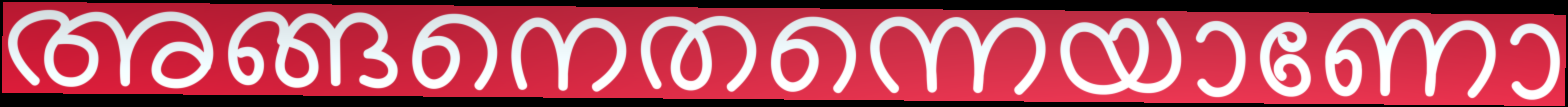
അങ്ങനെതന്നെയാണോ